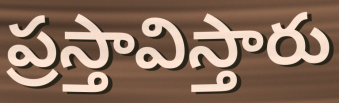
ప్రస్తావిస్తారు